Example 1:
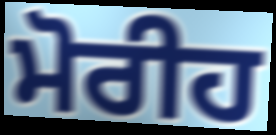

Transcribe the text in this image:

ਮੋਰੀਹ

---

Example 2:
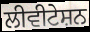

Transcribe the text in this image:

ਲੀਵੀਟੇਸ਼ਨ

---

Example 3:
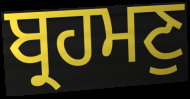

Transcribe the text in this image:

ਬ੍ਰਹਮਣੁ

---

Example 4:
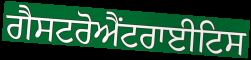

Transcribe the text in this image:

ਗੈਸਟਰੋਐਂਟਰਾਈਟਿਸ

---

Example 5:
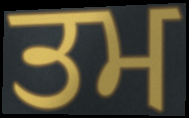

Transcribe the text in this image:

ਤਮ